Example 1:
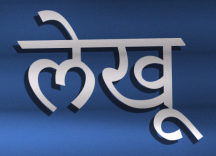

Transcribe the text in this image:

लेखू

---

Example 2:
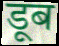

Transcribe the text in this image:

डूब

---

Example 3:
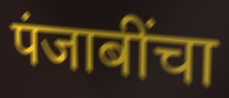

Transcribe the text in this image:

पंजाबींचा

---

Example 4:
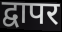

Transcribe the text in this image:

द्वापर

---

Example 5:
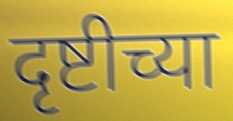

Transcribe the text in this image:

दृष्टीच्या